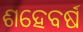
ଶହେବର୍ଷ